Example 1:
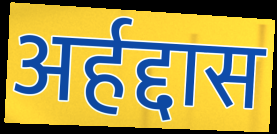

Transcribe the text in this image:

अर्हद्दास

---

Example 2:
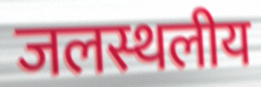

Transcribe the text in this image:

जलस्थलीय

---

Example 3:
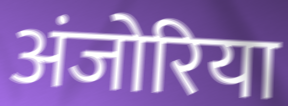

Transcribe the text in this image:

अंजोरिया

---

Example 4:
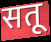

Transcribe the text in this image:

सतू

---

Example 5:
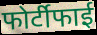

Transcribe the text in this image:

फोर्टीफाई